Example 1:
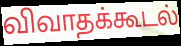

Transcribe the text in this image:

விவாதக்கூடல்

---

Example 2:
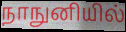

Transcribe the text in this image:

நாநுனியில்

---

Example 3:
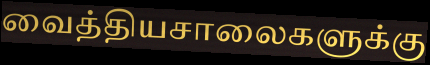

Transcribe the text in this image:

வைத்தியசாலைகளுக்கு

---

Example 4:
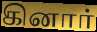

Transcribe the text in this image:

கினார்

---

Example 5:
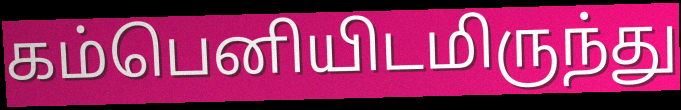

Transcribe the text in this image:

கம்பெனியிடமிருந்து